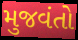
મુજવંતો